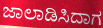
ಜಾಲಾಡಿಸಿದಾಗ